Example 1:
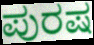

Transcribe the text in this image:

ಪುರಷ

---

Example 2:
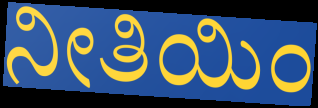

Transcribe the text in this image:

ನೀತಿಯಿಂ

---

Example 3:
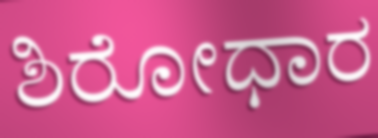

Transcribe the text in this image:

ಶಿರೋಧಾರ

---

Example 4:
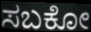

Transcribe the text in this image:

ಸಬಕೋ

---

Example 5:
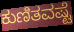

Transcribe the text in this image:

ಕುಣಿತವಷ್ಟೆ